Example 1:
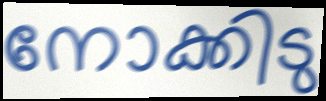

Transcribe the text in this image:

നോക്കിടു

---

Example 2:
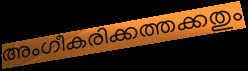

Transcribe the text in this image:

അംഗീകരിക്കത്തക്കതും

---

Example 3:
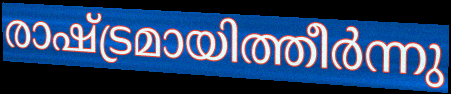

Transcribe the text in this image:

രാഷ്ട്രമായിത്തീർന്നു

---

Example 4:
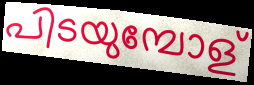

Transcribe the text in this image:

പിടയുമ്പോള്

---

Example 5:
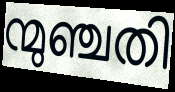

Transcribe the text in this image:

ന്മുഞ്ചതി